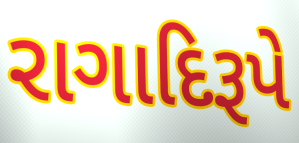
રાગાદિરૂપે